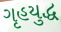
ગૃહયુદ્ધ